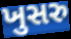
ખુસરુ